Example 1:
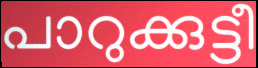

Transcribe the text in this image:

പാറുക്കുട്ടീ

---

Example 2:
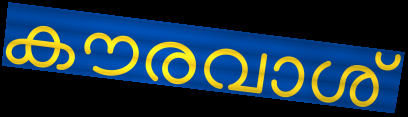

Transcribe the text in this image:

കൗരവാശ്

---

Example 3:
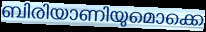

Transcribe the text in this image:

ബിരിയാണിയുമൊക്കെ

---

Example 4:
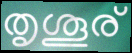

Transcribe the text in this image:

തൃശൂര്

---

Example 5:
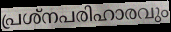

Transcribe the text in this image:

പ്രശ്നപരിഹാരവും